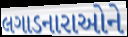
લગાડનારાઓને